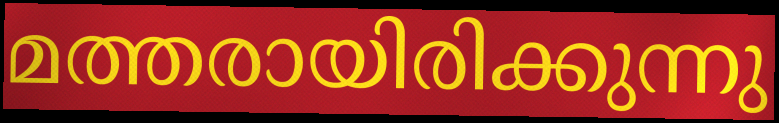
മത്തരായിരിക്കുന്നു